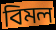
বিমল